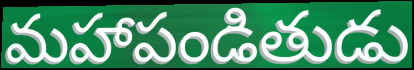
మహాపండితుడు